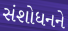
સંશોધનને